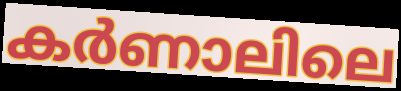
കർണാലിലെ